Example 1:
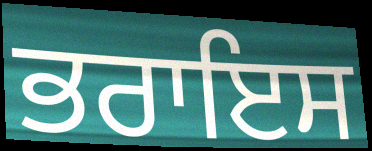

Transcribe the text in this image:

ਭਰਾਇਸ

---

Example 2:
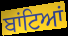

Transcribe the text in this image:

ਬਾਂਟਿਆਂ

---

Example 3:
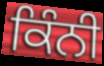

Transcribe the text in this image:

ਕਿੰਨੀ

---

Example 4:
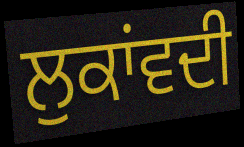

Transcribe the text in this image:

ਲੁਕਾਂਵਦੀ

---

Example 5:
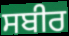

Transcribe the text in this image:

ਸਬੀਰ